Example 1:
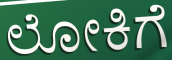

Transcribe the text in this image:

ಲೋಕಿಗೆ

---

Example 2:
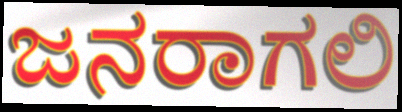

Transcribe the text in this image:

ಜನರಾಗಲಿ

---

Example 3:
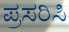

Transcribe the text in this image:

ಪ್ರಸರಿಸಿ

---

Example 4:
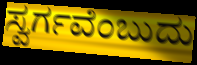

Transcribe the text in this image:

ಸ್ವರ್ಗವೆಂಬುದು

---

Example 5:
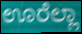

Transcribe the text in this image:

ಊರೆಲ್ಲಾ